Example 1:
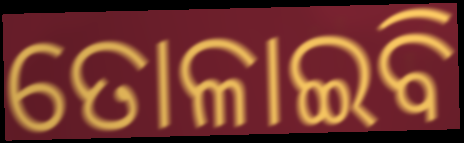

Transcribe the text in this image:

ତୋଳାଇବି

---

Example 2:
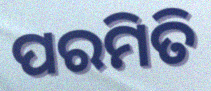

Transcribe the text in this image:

ପରମିତି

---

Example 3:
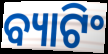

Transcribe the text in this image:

ବ୍ୟାଟିଂ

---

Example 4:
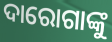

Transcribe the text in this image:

ଦାରୋଗାଙ୍କୁ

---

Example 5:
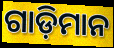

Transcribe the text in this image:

ଗାଡ଼ିମାନ